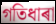
গতিধাৰা